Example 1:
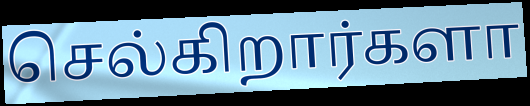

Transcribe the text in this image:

செல்கிறார்களா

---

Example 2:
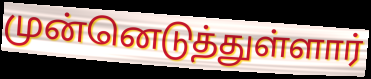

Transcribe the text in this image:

முன்னெடுத்துள்ளார்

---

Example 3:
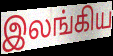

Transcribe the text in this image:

இலங்கிய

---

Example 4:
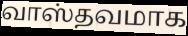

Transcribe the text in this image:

வாஸ்தவமாக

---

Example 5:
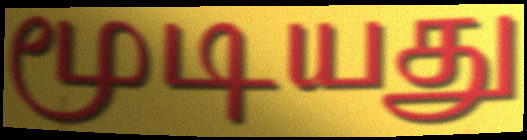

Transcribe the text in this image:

மூடியது